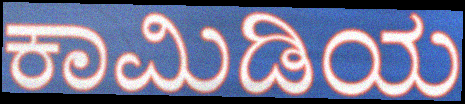
ಕಾಮಿಡಿಯ